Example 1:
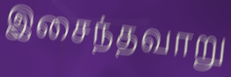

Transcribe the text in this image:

இசைந்தவாறு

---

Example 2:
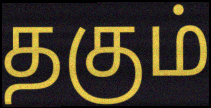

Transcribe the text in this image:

தகும்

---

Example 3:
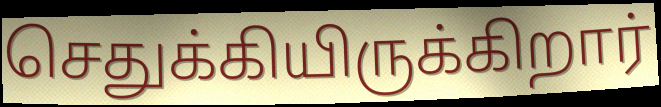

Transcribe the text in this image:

செதுக்கியிருக்கிறார்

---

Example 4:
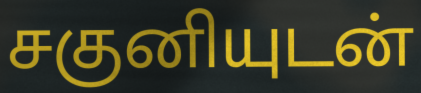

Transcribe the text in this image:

சகுனியுடன்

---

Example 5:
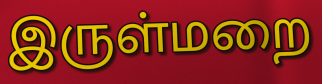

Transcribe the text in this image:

இருள்மறை